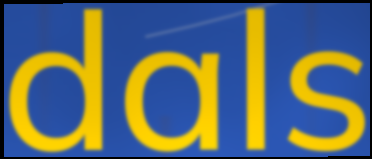
dals